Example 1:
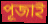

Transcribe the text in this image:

পূজাই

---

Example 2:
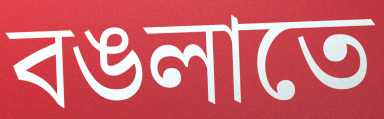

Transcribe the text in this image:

বঙলাতে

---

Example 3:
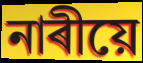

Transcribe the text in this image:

নাৰীয়ে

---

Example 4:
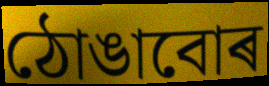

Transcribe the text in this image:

ঠোঙাবোৰ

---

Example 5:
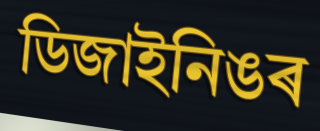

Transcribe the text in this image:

ডিজাইনিঙৰ